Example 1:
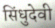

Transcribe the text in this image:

सिंधुदेवी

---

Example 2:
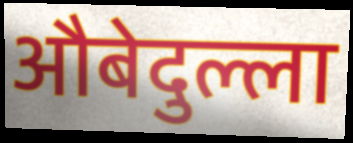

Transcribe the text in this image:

औबेदुल्ला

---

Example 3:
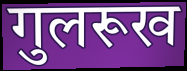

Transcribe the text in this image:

गुलरूख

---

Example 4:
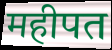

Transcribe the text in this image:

महीपत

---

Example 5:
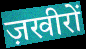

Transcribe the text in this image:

ज़खीरों